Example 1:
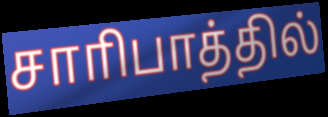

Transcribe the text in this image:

சாரிபாத்தில்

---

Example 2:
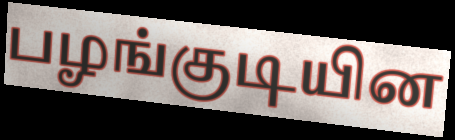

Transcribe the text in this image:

பழங்குடியின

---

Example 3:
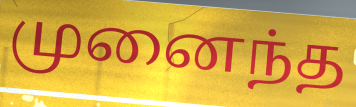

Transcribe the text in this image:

முனைந்த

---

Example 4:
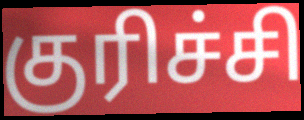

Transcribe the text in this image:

குரிச்சி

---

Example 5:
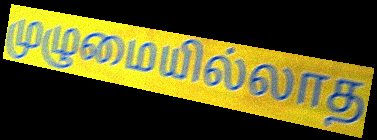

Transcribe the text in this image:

முழுமையில்லாத